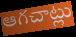
ఆగచాట్లు